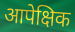
आपेक्षिक